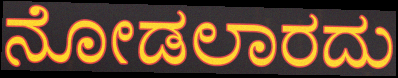
ನೋಡಲಾರದು